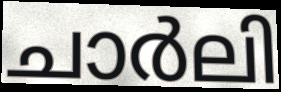
ചാർലി